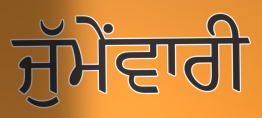
ਜੁੱਮੇਂਵਾਰੀ